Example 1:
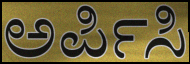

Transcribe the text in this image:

ಅರ್ಪಿಸಿ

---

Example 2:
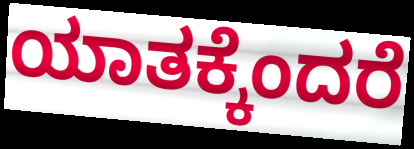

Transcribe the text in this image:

ಯಾತಕ್ಕೆಂದರೆ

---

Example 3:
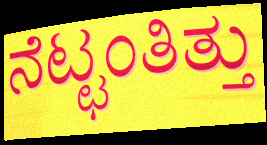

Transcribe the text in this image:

ನೆಟ್ಟಂತಿತ್ತು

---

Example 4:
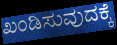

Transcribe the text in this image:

ಖಂಡಿಸುವುದಕ್ಕೆ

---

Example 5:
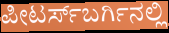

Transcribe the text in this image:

ಪೀಟರ್ಸ್‍ಬರ್ಗಿನಲ್ಲಿ